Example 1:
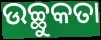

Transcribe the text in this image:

ଉଚ୍ଛୁକତା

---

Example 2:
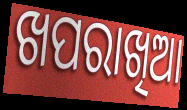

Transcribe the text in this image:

ଖପରାଖିଆ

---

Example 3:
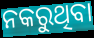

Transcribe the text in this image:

ନକରୁଥିବା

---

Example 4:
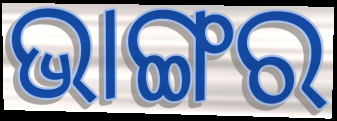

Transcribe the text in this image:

ଭାଙ୍ଗର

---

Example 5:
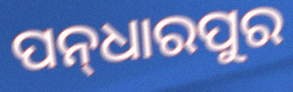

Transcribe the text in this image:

ପନ୍‌ଧାରପୁର